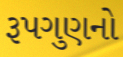
રૂપગુણનો